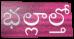
భల్లాల్తో